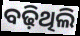
ବଢ଼ିଥିଲି